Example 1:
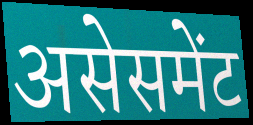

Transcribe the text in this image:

असेसमेंट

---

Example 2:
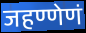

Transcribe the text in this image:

जहण्णेणं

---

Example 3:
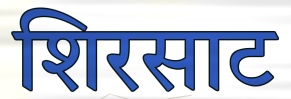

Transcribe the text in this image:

शिरसाट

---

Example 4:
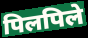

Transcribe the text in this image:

पिलपिले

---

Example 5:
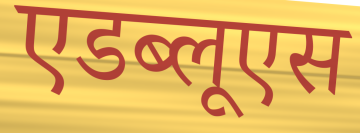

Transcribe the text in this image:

एडब्लूएस